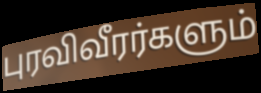
புரவிவீரர்களும்